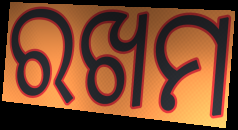
ରଖମ